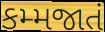
કમ્મજાતં